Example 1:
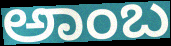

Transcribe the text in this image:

ಅಾಂಬ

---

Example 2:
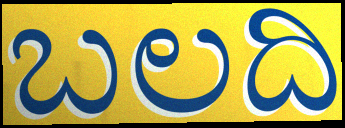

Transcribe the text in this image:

ಬಲದಿ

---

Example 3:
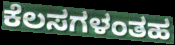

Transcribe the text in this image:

ಕೆಲಸಗಳಂತಹ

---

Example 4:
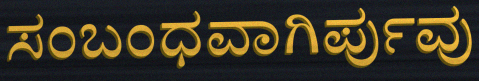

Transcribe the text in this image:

ಸಂಬಂಧವಾಗಿರ್ಪುವು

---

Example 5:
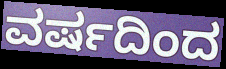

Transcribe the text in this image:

ವರ್ಷದಿಂದ